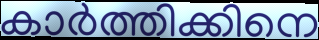
കാർത്തിക്കിനെ